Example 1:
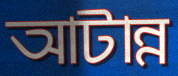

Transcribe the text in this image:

আটান্ন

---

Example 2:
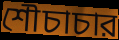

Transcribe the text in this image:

শৌচাচার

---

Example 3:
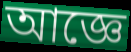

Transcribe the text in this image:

আজ্ঞে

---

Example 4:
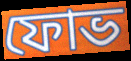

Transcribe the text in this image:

ফোভ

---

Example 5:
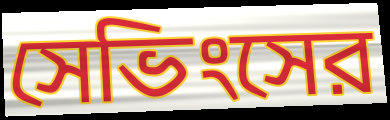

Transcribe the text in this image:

সেভিংসের